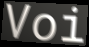
Voi